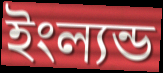
ইংল্যন্ড